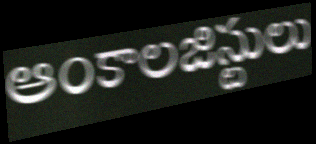
ఆంకాలజిస్టులు